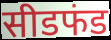
सीडफंड